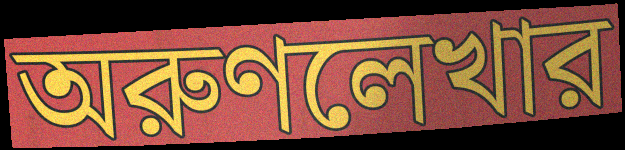
অরুণলেখার